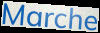
Marche